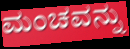
ಮಂಚವನ್ನು